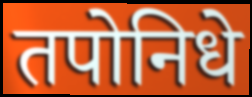
तपोनिधे